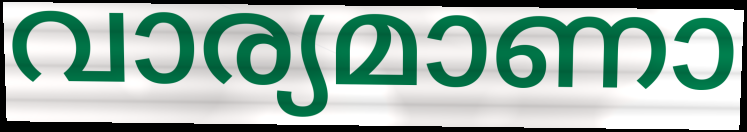
വാര്യമാണാ